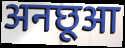
अनछूआ